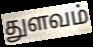
துளவம்